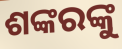
ଶଙ୍କରଙ୍କୁ